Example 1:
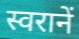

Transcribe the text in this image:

स्वरानें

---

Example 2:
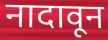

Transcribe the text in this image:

नादावून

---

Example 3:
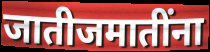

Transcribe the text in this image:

जातीजमातींना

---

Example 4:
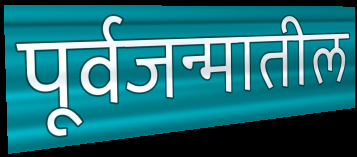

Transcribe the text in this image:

पूर्वजन्मातील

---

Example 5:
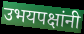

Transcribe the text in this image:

उभयपक्षांनी